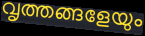
വൃത്തങ്ങളേയും